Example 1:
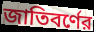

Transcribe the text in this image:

জাতিবর্ণের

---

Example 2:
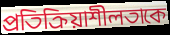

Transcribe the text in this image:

প্রতিক্রিয়াশীলতাকে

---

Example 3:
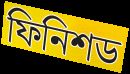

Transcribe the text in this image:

ফিনিশড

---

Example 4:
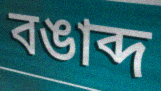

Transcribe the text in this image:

বঙাব্দ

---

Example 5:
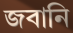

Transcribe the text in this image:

জবানি